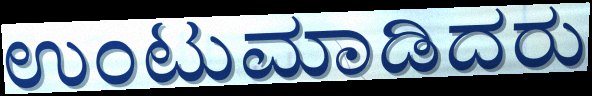
ಉಂಟುಮಾಡಿದರು